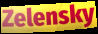
Zelensky